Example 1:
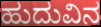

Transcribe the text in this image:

ಹುದುವಿನ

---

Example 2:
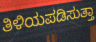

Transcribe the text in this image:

ತಿಳಿಯಪಡಿಸುತ್ತಾ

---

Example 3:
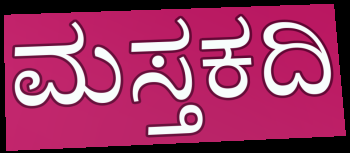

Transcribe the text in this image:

ಮಸ್ತಕದಿ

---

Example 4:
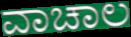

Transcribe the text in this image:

ವಾಚಾಲ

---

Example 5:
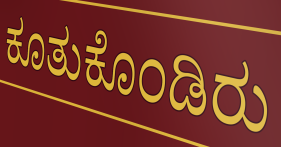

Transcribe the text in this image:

ಕೂತುಕೊಂಡಿರು